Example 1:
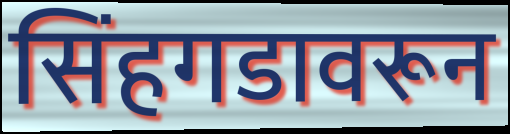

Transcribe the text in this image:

सिंहगडावरून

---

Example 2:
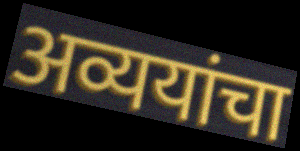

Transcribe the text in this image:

अव्ययांचा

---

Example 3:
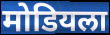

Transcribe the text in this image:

मोडियला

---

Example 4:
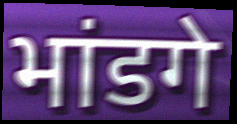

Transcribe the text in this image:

भांडगे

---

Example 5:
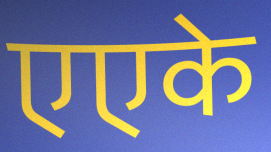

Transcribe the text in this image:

एएके